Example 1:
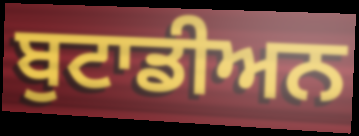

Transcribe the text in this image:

ਬੁਟਾਡੀਅਨ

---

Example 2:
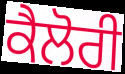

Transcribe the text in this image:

ਕੈਲੋਰੀ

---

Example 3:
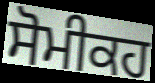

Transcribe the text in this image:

ਸੋਮੀਕਹ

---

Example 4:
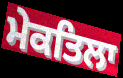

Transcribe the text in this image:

ਮੇਕਤਿਲਾ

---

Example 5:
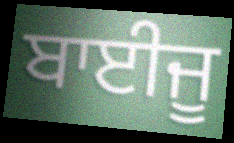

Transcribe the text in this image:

ਬਾਈਜੂ